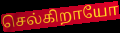
செல்கிறாயோ